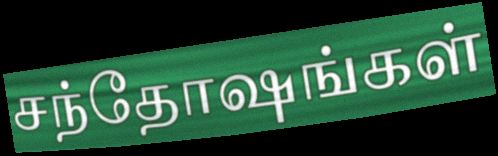
சந்தோஷங்கள்